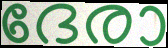
ദേരാ